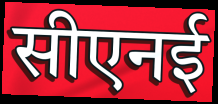
सीएनई